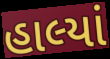
હાલ્યાં